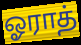
ஓராத்